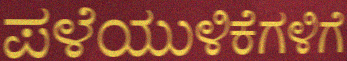
ಪಳೆಯುಳಿಕೆಗಳಿಗೆ